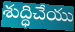
శుద్ధిచేయు